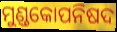
ମୁଣ୍ଡକୋପନିଷଦ